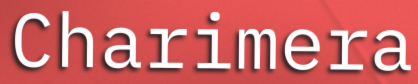
Charimera